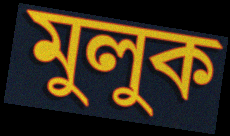
মুলুক